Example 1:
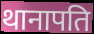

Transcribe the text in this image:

थानापति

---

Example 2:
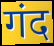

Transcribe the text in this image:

गंद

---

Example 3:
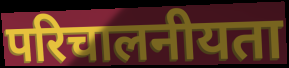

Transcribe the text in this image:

परिचालनीयता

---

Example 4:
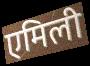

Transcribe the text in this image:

एमिली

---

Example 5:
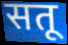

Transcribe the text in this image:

सतू